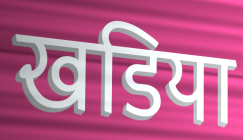
खडिया